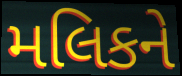
મલિકને